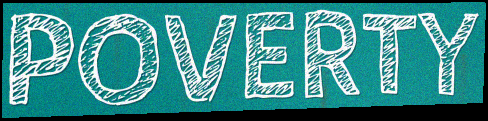
POVERTY